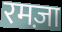
रमज़ा